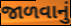
જાળવાનું